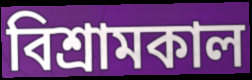
বিশ্রামকাল